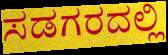
ಸಡಗರದಲ್ಲಿ